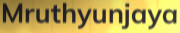
Mruthyunjaya